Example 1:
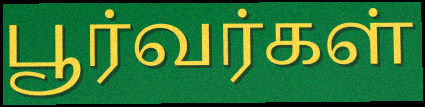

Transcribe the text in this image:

பூர்வர்கள்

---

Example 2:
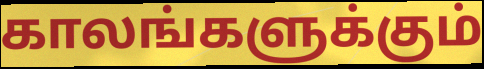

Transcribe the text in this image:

காலங்களுக்கும்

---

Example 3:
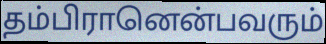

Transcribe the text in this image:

தம்பிரானென்பவரும்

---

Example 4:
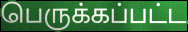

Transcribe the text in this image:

பெருக்கப்பட்ட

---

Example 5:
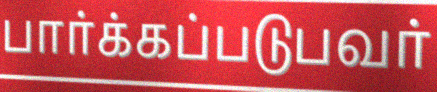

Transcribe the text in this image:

பார்க்கப்படுபவர்